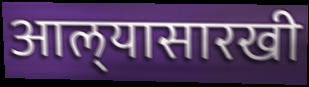
आल्यासारखी